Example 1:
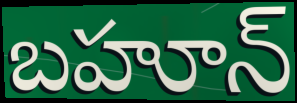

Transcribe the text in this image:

బహూన్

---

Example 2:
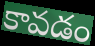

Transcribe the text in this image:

కావడం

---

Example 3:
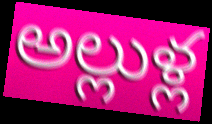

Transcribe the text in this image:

అల్లుళ్ల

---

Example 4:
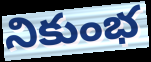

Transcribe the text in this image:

నికుంభ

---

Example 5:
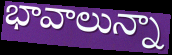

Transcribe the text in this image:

భావాలున్నా